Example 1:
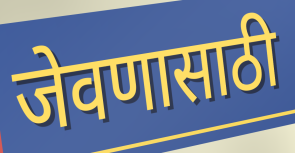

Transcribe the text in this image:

जेवणासाठी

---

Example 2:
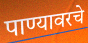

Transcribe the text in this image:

पाण्यावरचे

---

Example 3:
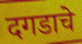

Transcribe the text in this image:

दगडाचे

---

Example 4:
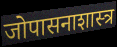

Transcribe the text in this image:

जोपासनाशास्त्र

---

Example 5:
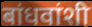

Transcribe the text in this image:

बांधवांशी